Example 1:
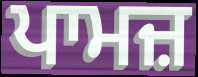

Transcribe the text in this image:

ਪਾਮਜ਼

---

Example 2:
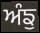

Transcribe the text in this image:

ਅੰਙੁ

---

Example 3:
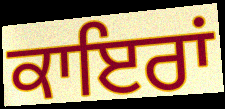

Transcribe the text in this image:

ਕਾਇਰਾਂ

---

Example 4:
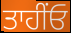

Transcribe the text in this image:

ਤਾਹੀਂਓ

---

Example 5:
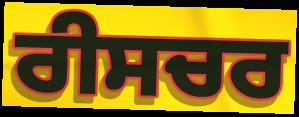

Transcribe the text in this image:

ਰੀਸਚਰ